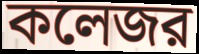
কলেজর